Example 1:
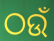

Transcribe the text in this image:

ଠଉଁ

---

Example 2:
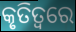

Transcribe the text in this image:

କୃତିତ୍ୱରେ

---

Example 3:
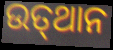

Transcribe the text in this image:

ଉତ୍‌ଥାନ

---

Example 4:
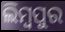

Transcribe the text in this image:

ଲିମ୍ବପୁର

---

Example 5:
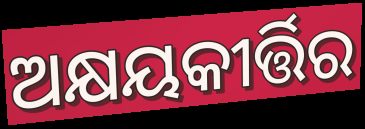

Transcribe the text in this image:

ଅକ୍ଷୟକୀର୍ତ୍ତିର